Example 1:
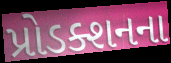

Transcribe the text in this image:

પ્રોડક્શનના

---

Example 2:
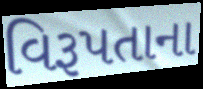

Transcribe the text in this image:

વિરૂપતાના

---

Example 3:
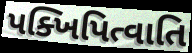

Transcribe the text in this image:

પક્ખિપિત્વાતિ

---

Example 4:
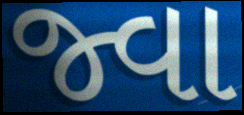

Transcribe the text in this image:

જ્વા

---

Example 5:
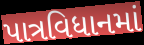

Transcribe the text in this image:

પાત્રવિધાનમાં